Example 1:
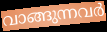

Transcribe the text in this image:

വാങ്ങുന്നവർ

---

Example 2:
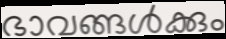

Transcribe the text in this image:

ഭാവങ്ങൾക്കും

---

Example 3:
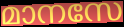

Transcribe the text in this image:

മാനസേ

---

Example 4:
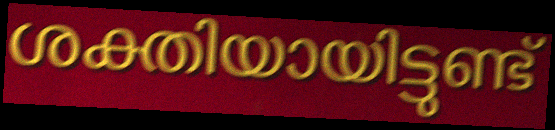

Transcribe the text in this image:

ശക്തിയായിട്ടുണ്ട്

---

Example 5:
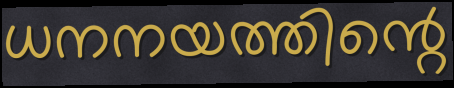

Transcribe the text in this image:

ധനനയത്തിന്റെ